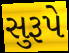
સુરૂપે